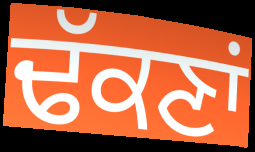
ਢੱਕਣਾਂ